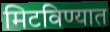
मिटविण्यात